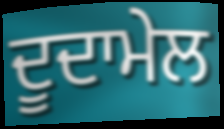
ਦੂਦਾਮੇਲ